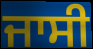
ਜਾਸੀ